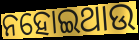
ନହୋଇଥାଉ